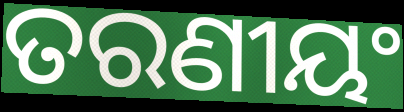
ତରଣୀୟଂ